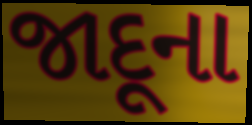
જાદૂના